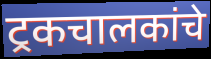
ट्रकचालकांचे